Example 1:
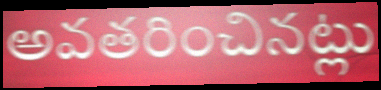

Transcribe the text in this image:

అవతరించినట్లు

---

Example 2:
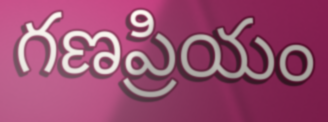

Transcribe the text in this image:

గణప్రియం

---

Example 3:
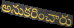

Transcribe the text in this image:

అనుకరించారు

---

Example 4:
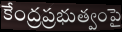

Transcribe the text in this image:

కేంద్రప్రభుత్వంపై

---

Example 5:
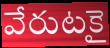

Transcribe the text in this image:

వేరుటకై